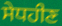
ਸੇਧਹੀਣ